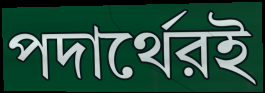
পদার্থেরই